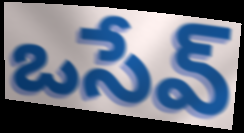
ఒసేవ్